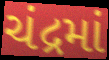
ચંદ્રમાં